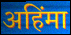
अहिंमा